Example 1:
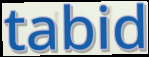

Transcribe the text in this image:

tabid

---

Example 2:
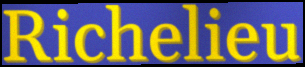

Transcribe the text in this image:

Richelieu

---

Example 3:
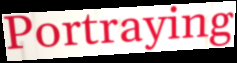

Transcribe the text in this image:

Portraying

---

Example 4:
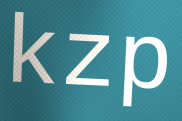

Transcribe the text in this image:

kzp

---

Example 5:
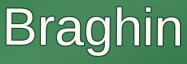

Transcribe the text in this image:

Braghin